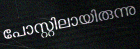
പോസ്റ്റിലായിരുന്നു